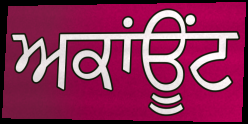
ਅਕਾਂਊਂਟ